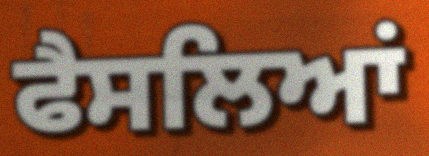
ਫੈਸਲਿਆਂ